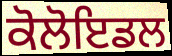
ਕੋਲੋਇਡਲ